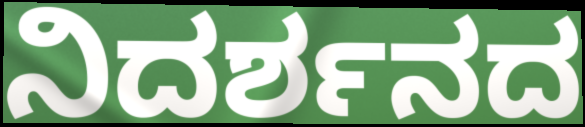
ನಿದರ್ಶನದ